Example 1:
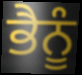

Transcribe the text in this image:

ਭੈਨੂੰ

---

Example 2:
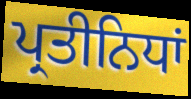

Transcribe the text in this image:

ਪ੍ਰਤੀਨਿਧਾਂ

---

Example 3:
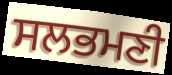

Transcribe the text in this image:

ਸਲਭਮਣੀ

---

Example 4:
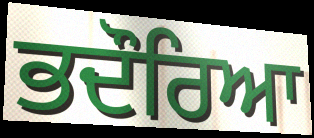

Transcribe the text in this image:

ਭਦੌਰਿਆ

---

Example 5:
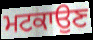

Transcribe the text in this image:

ਮਟਕਾਉਣ